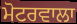
ਮੋਟਰਵਾਲਾ